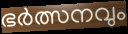
ഭർത്സനവും